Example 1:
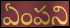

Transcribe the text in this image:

ఏంపని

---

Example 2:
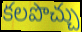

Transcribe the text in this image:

కలపొచ్చు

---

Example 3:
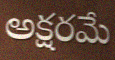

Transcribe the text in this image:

అక్షరమే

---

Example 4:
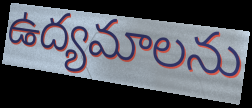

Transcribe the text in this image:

ఉద్యమాలను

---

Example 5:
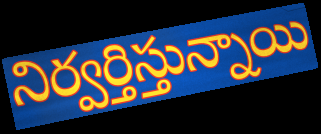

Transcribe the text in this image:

నిర్వర్తిస్తున్నాయి